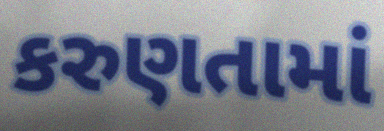
કરુણતામાં